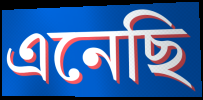
এনেছি